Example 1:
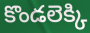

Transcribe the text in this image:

కొండలెక్కి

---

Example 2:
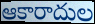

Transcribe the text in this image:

ఆకారాదుల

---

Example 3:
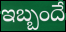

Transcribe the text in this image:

ఇబ్బందే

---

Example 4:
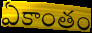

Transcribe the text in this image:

ఏకాంతం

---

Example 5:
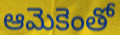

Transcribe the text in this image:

ఆమెకెంతో